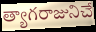
త్యాగరాజునిచే